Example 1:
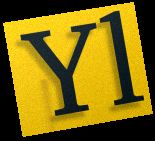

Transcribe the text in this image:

Yl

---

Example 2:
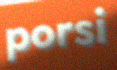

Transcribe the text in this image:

porsi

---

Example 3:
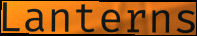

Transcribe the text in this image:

Lanterns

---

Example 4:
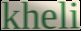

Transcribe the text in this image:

kheli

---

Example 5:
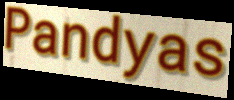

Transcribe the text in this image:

Pandyas